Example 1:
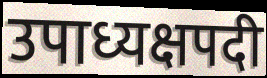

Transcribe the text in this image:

उपाध्यक्षपदी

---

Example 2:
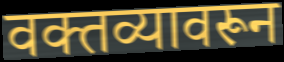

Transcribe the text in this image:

वक्तव्यावरून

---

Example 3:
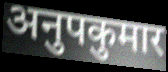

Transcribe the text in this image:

अनुपकुमार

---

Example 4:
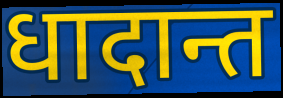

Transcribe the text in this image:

धादान्त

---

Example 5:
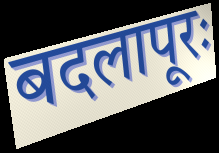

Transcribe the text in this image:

बदलापूरः